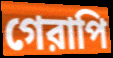
গেরাপি